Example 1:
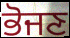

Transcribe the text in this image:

ਭੋਜਣ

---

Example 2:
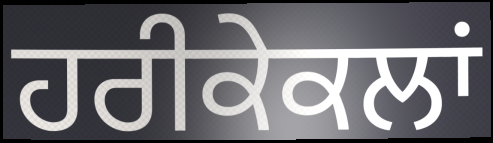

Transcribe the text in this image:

ਹਰੀਕੇਕਲਾਂ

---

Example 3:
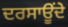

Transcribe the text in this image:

ਦਰਸਾਊਂਦੇ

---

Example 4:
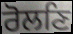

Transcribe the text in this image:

ਰੋਲਣਿ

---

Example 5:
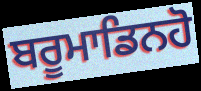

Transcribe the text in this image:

ਬਰੂਮਾਡਿਨਹੋ